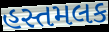
હસ્તમલક